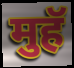
मुहॅ